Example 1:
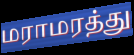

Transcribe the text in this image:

மராமரத்து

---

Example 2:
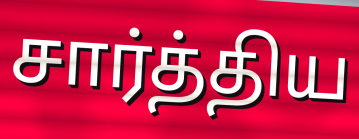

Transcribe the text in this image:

சார்த்திய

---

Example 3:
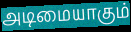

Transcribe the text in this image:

அடிமையாகும்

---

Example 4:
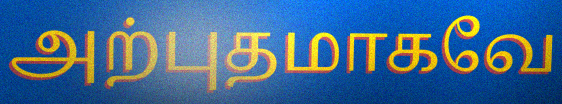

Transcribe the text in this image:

அற்புதமாகவே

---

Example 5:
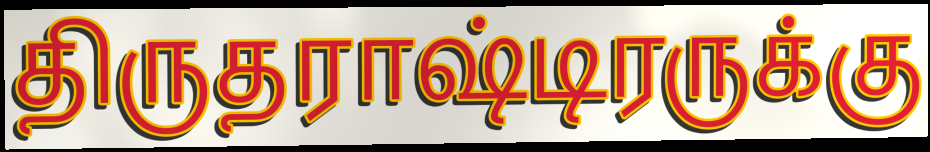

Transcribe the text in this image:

திருதராஷ்டிரருக்கு